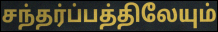
சந்தர்ப்பத்திலேயும்